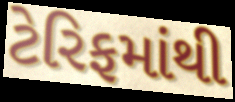
ટેરિફમાંથી